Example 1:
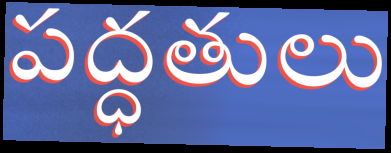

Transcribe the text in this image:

పద్ధతులు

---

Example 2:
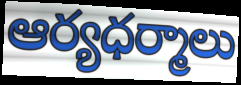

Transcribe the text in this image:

ఆర్యధర్మాలు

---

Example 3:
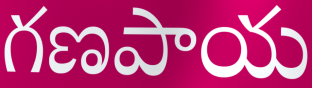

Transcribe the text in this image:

గణపాయ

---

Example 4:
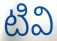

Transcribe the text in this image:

టివి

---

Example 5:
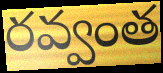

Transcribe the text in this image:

రవ్వంత